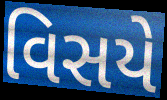
વિસયે